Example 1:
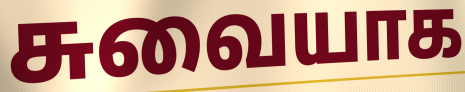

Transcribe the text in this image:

சுவையாக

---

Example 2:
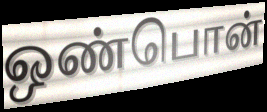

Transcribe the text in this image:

ஒண்பொன்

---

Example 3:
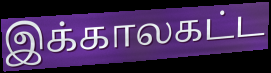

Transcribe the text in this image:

இக்காலகட்ட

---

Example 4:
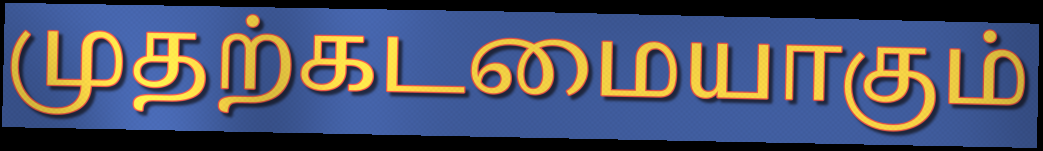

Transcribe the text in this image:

முதற்கடமையாகும்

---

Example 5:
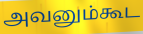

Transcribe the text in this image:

அவனும்கூட